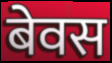
बेवस